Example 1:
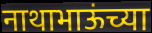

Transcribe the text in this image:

नाथाभाऊंच्या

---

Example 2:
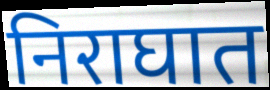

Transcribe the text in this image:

निराघात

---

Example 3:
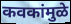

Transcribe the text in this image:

कवकांमुळे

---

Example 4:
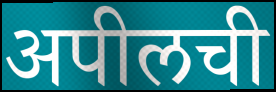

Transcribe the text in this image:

अपीलची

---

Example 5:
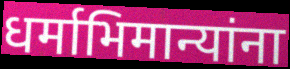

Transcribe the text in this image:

धर्माभिमान्यांना